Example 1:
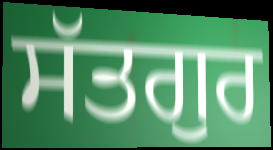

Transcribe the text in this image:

ਸੱਤਗੁਰ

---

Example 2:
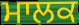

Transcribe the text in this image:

ਮਾਲਕ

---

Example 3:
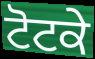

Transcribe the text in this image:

ਟੋਟਕੇ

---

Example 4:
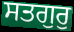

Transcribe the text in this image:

ਸਤਗੁਰੁ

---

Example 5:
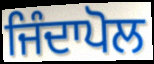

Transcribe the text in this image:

ਜਿੰਦਾਪੋਲ